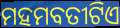
ମହମବତୀଟିଏ